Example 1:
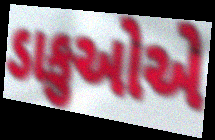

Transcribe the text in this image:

ડાકુઓએ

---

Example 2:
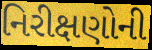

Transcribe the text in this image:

નિરીક્ષણોની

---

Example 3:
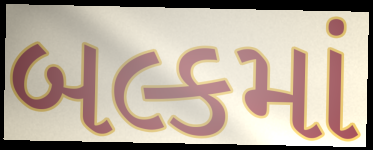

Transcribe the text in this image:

બલ્કમાં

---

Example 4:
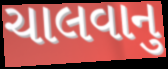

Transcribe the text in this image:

ચાલવાનુ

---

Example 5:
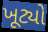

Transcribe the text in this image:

ખૂટ્યો